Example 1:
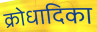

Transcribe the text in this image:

क्रोधादिका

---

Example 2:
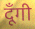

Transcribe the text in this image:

दूँगी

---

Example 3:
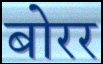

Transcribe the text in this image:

बोरर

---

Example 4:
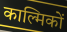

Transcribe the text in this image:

काल्मिकों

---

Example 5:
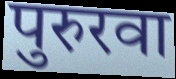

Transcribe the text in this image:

पुरुरवा